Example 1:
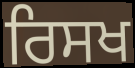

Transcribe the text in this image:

ਰਿਸਖ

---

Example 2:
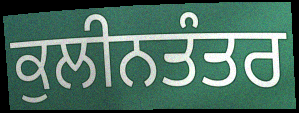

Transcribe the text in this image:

ਕੁਲੀਨਤੰਤਰ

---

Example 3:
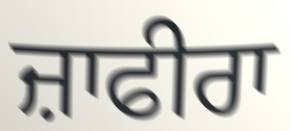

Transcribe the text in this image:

ਜ਼ਾਫੀਰਾ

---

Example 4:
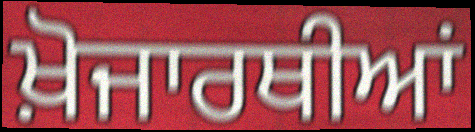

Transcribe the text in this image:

ਖ਼ੋਜਾਰਥੀਆਂ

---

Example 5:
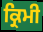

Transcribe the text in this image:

ਕ੍ਰਿਮੀ